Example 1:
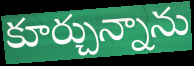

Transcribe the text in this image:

కూర్చున్నాను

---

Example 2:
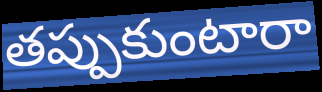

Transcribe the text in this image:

తప్పుకుంటారా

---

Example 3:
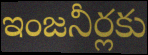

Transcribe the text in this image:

ఇంజనీర్లకు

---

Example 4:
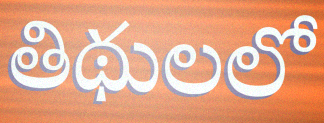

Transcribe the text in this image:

తిథులలో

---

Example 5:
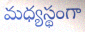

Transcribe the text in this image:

మధ్యస్థంగా